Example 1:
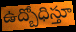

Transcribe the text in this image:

ఉద్బోధిస్తూ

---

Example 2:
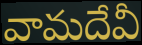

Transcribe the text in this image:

వామదేవీ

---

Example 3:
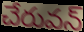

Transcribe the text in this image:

చేరువన్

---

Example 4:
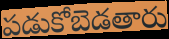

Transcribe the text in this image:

పడుకోబెడతారు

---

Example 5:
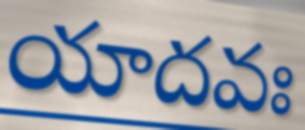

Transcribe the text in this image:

యాదవః